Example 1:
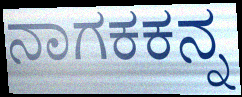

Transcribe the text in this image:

ನಾಗಕಕನ್ನ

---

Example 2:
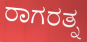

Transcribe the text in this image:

ರಾಗರತ್ನ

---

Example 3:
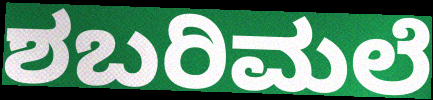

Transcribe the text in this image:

ಶಬರಿಮಲೆ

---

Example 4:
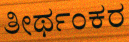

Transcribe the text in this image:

ತೀರ್ಥಂಕರ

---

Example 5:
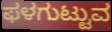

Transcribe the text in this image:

ಫಳಗುಟ್ಟುವ